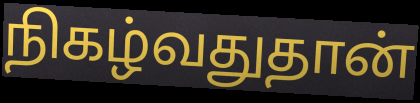
நிகழ்வதுதான்